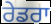
ਰੇਡਰਾ